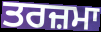
ਤਰਜ਼ਮਾ